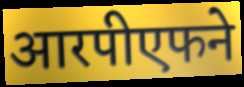
आरपीएफने